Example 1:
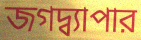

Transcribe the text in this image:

জগদ্ব্যাপার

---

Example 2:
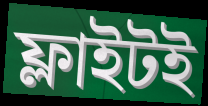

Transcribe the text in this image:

ফ্লাইটই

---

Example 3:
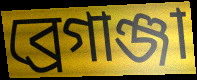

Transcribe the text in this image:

ব্রেগাঞ্জা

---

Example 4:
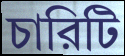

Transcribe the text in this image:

চারিটি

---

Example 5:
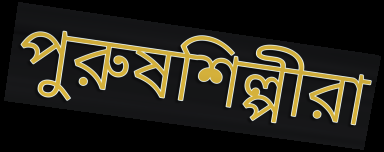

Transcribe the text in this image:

পুরুষশিল্পীরা